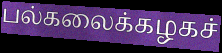
பல்கலைக்கழகச்